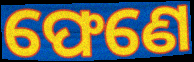
ଫେଣେ